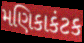
મણિકાકંટક